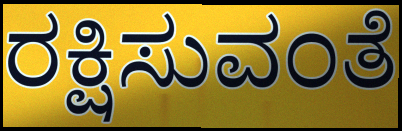
ರಕ್ಷಿಸುವಂತೆ